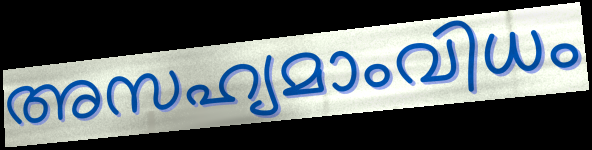
അസഹ്യമാംവിധം